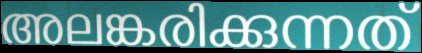
അലങ്കരിക്കുന്നത്